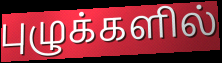
புழுக்களில்